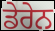
ਡੇਰੇਨ